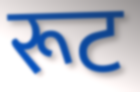
रूट